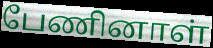
பேணினாள்